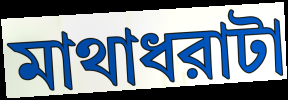
মাথাধরাটা